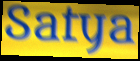
Satya